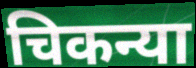
चिकन्या